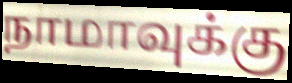
நாமாவுக்கு